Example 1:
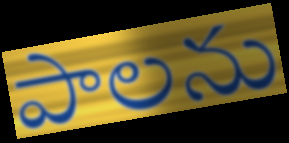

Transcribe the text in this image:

పాలను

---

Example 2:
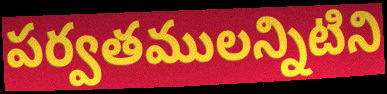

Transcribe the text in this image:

పర్వతములన్నిటిని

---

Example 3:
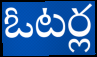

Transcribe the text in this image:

ఓటర్ల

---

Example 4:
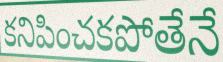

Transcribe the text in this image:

కనిపించకపోతేనే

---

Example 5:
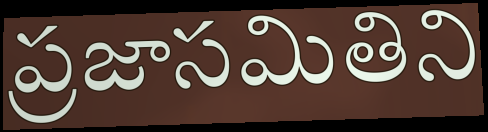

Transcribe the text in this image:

ప్రజాసమితిని